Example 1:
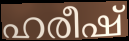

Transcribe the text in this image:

ഹരീഷ്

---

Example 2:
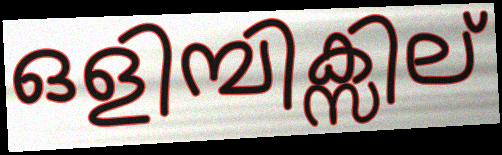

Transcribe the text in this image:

ഒളിമ്പിക്സില്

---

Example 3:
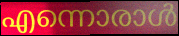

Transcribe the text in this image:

എന്നൊരാൾ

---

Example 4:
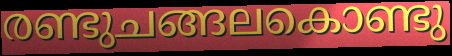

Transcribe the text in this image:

രണ്ടുചങ്ങലകൊണ്ടു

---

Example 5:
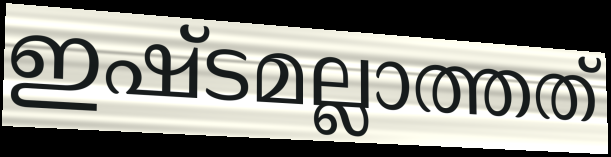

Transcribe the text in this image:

ഇഷ്ടമല്ലാത്തത്